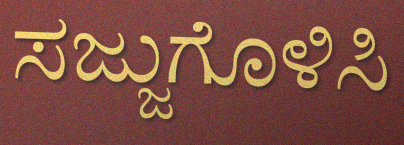
ಸಜ್ಜುಗೊಳಿಸಿ